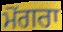
ਮੋਂਗਰਾ